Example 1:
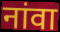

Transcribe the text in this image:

नांवा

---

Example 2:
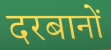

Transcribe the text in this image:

दरबानों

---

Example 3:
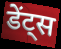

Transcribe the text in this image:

डेंट्स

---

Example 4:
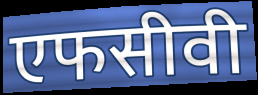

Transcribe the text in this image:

एफसीवी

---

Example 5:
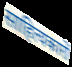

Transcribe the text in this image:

साहित्यकारों